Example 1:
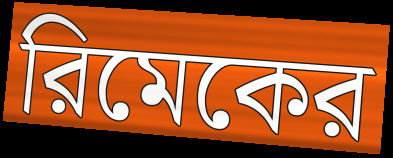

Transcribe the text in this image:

রিমেকের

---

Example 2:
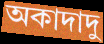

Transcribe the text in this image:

অকাদাদু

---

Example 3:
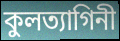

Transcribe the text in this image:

কুলত্যাগিনী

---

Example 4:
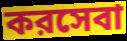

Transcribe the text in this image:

করসেবা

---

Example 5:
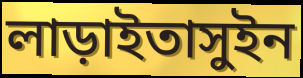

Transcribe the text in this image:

লাড়াইতাসুইন